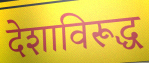
देशाविरूद्ध